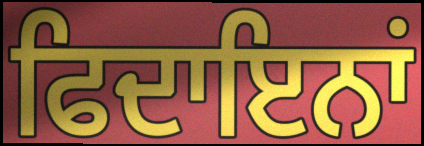
ਫਿਦਾਇਨਾਂ